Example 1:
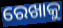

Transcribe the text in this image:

ରେଖାକୁ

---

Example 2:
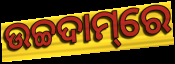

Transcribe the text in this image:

ଉଚ୍ଚଦାମ୍‌ରେ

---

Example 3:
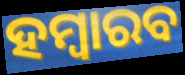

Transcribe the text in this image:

ହମ୍ବାରବ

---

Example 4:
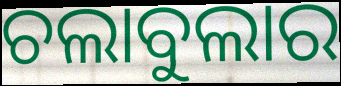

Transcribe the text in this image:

ଚଲାବୁଲାର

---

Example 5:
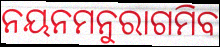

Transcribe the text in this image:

ନୟନମନୁରାଗମିବ